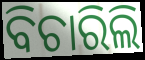
ବିଚାରିଲି